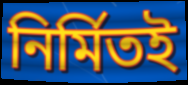
নির্মিতই